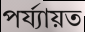
পৰ্য্যায়ত